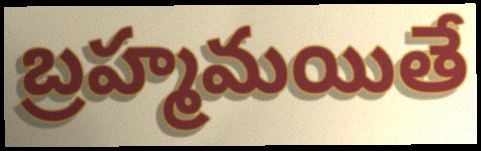
బ్రహ్మమయితే